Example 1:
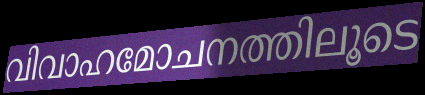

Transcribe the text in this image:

വിവാഹമോചനത്തിലൂടെ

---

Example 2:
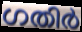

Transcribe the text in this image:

ഗതിർ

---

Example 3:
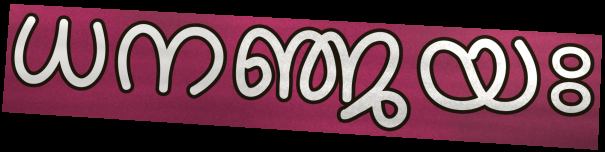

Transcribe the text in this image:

ധനഞ്ജയഃ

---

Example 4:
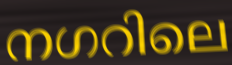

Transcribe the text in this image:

നഗറിലെ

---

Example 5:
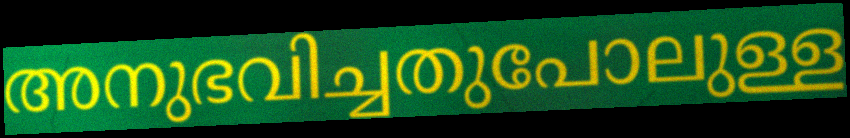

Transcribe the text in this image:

അനുഭവിച്ചതുപോലുള്ള